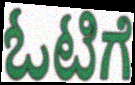
ಓಟಿಗೆ